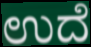
ಉದೆ